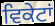
ਵਿਕੇਟਾਂ